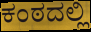
ಕಂಠದಲ್ಲಿ